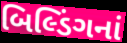
બિલ્ડિંગનાં